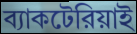
ব্যাকটেরিয়াই